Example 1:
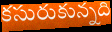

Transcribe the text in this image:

కసురుకున్నది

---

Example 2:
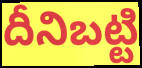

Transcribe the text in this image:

దీనిబట్టి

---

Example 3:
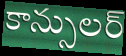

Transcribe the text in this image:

కాన్సులర్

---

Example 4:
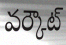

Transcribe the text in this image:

వర్కౌట్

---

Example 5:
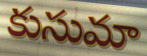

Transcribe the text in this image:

కుసుమా